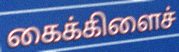
கைக்கிளைச்